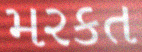
મરકત